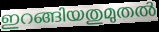
ഇറങ്ങിയതുമുതൽ